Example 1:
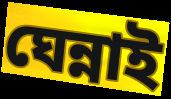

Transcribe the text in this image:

ঘেন্নাই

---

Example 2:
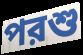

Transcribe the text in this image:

পরশু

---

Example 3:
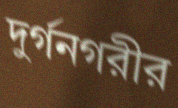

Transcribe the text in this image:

দুর্গনগরীর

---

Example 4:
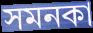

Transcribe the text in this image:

সমনকা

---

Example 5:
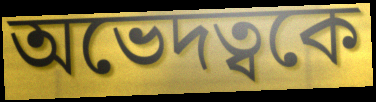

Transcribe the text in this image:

অভেদত্বকে